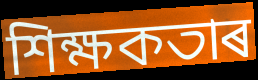
শিক্ষকতাৰ